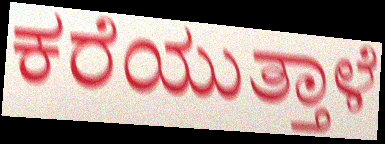
ಕರೆಯುತ್ತಾಳೆ